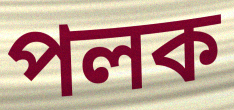
পলক